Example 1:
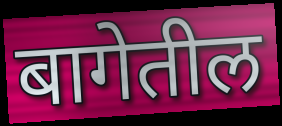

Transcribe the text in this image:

बागेतील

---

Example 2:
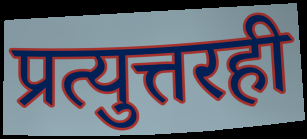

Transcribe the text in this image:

प्रत्युत्तरही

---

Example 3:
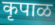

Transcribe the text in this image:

कृपाळ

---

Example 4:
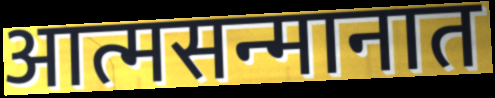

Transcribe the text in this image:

आत्मसन्मानात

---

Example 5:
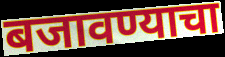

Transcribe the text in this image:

बजावण्याचा